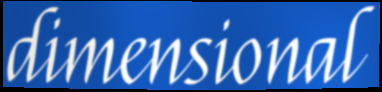
dimensional